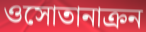
ওসোতানাক্রন